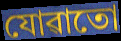
যোৱাতো